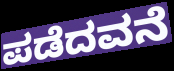
ಪಡೆದವನೆ